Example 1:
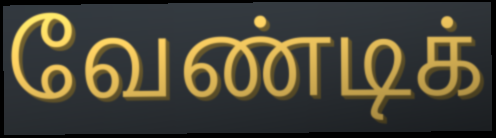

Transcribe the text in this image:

வேண்டிக்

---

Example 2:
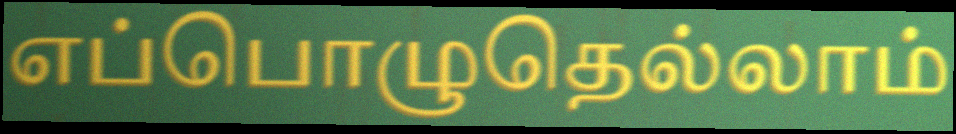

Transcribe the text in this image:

எப்பொழுதெல்லாம்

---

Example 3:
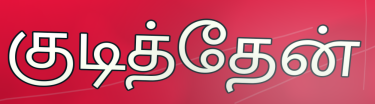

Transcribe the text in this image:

குடித்தேன்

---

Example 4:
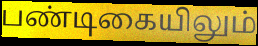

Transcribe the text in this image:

பண்டிகையிலும்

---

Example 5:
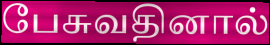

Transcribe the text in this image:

பேசுவதினால்